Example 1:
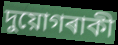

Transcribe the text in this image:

দুয়োগৰাকী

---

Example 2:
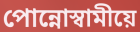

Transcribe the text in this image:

পোন্নোস্বামীয়ে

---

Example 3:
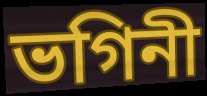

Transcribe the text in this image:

ভগিনী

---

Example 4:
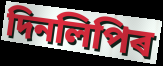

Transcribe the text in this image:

দিনলিপিৰ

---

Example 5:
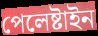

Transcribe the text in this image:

পেলেষ্টাইন